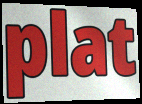
plat